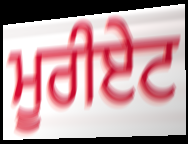
ਮੂਰੀਏਟ